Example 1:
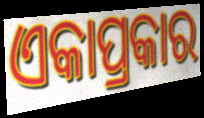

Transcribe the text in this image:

ଏକାପ୍ରକାର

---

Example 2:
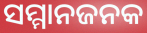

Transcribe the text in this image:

ସମ୍ମାନଜନକ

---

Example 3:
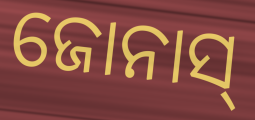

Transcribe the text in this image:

ଜୋନାସ୍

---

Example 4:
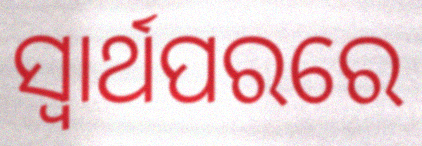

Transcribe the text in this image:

ସ୍ୱାର୍ଥପରରେ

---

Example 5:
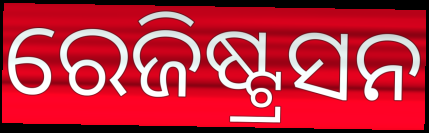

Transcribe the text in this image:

ରେଜିଷ୍ଟ୍ରସନ